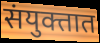
संयुक्तात